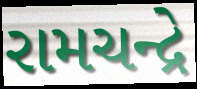
રામચન્દ્રે